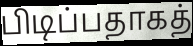
பிடிப்பதாகத்